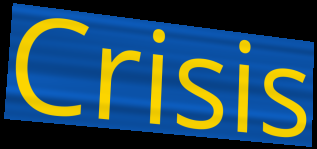
Crisis